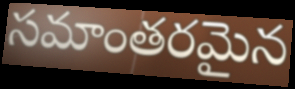
సమాంతరమైన